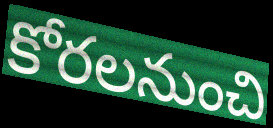
కోరలనుంచి